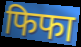
फिफा